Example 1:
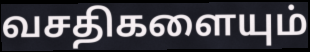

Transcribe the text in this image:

வசதிகளையும்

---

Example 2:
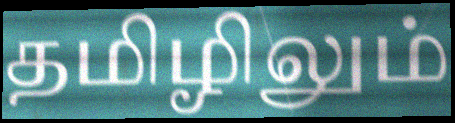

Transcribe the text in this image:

தமிழிலும்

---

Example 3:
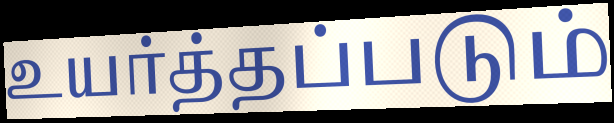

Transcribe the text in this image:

உயர்த்தப்படும்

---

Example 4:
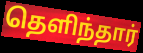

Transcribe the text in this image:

தெளிந்தார்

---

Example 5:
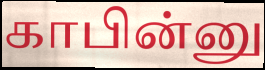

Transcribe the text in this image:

காபின்னு